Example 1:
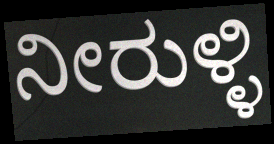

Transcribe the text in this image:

ನೀರುಳ್ಳಿ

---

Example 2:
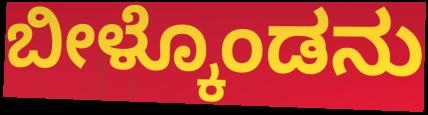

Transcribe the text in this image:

ಬೀಳ್ಕೊಂಡನು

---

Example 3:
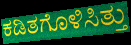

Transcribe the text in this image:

ಕಡಿತಗೊಳಿಸಿತ್ತು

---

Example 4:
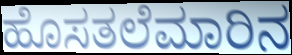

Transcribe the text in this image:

ಹೊಸತಲೆಮಾರಿನ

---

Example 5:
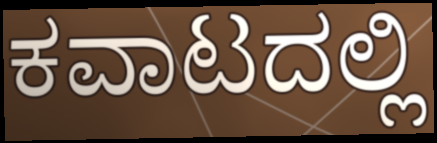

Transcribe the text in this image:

ಕವಾಟದಲ್ಲಿ